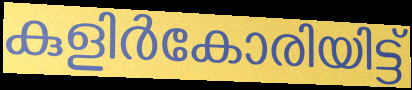
കുളിർകോരിയിട്ട്